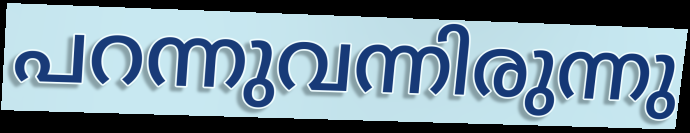
പറന്നുവന്നിരുന്നു